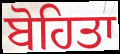
ਬੋਹਿਤਾ